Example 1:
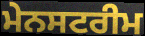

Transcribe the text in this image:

ਮੇਨਸਟਰੀਮ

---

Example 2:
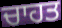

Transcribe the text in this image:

ਚਾਹਤ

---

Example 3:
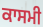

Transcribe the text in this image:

ਕਾਸਮੀ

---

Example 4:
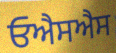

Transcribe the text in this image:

ਓਐਸਐਸ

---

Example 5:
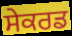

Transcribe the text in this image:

ਸੇਕਰਡ